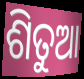
ଶିତୁଆ